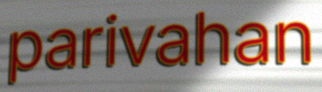
parivahan